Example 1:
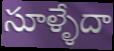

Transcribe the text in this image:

సూళ్ళేదా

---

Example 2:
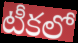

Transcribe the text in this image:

టీకలో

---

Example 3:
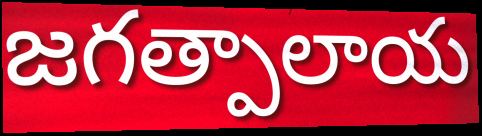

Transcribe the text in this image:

జగత్పాలాయ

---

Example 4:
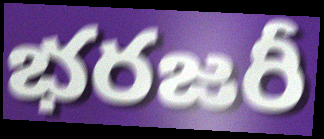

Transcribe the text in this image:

భరజరీ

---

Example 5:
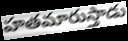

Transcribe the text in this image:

హతమారుస్తాడు